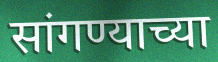
सांगण्याच्या